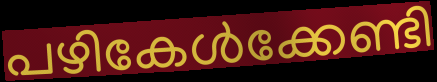
പഴികേൾക്കേണ്ടി